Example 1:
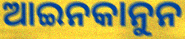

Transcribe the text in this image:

ଆଇନକାନୁନ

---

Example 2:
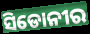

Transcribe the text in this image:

ସିଡୋନୀର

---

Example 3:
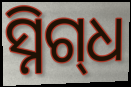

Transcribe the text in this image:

ସ୍ନିଗ୍‍ଧ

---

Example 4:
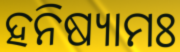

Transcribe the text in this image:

ହନିଷ୍ୟାମଃ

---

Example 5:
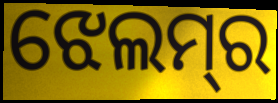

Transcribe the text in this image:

ଝେଲମ୍‌ର